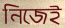
নিজেই